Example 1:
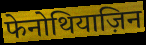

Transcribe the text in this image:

फेनोथियाज़िन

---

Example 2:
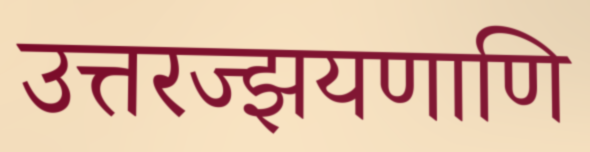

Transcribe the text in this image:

उत्तरज्झयणाणि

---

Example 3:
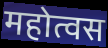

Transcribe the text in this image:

महोत्वस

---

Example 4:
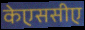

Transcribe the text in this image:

केएससीए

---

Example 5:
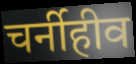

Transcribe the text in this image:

चर्नीहीव